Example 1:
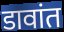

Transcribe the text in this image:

डावांत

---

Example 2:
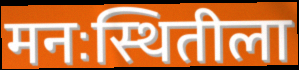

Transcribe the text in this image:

मनःस्थितीला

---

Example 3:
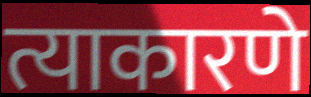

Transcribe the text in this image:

त्याकारणे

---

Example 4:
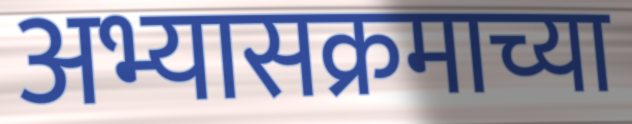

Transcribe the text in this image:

अभ्यासक्रमाच्या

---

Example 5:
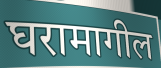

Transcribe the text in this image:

घरामागील